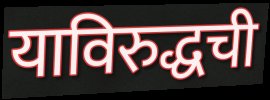
याविरुद्धची